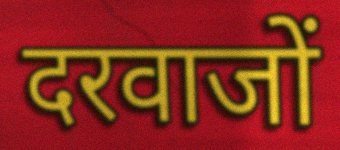
दरवाजों